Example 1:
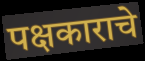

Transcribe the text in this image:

पक्षकाराचे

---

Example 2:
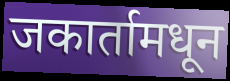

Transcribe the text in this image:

जकार्तामधून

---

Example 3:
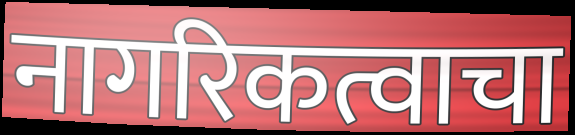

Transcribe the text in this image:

नागरिकत्वाचा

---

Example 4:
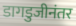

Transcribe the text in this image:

डागडुजीनंतर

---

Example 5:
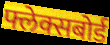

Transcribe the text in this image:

फ्लेक्सबोर्ड